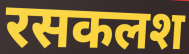
रसकलश